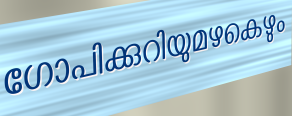
ഗോപിക്കുറിയുമഴകെഴും